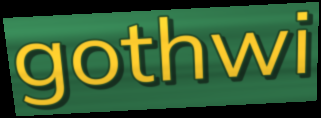
gothwi